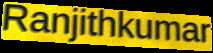
Ranjithkumar